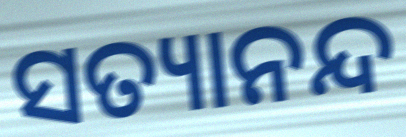
ସତ୍ୟାନନ୍ଦ